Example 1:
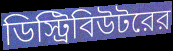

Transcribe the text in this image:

ডিস্ট্রিবিউটরের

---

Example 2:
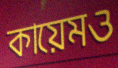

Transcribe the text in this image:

কায়েমও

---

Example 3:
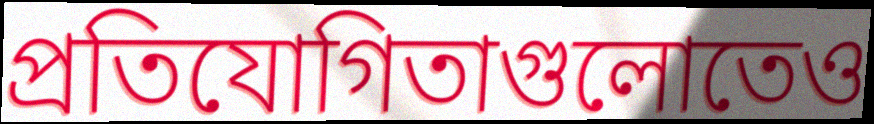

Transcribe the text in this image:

প্রতিযোগিতাগুলোতেও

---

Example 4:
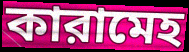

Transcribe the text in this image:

কারামেহ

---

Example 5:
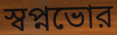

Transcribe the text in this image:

স্বপ্নভোর